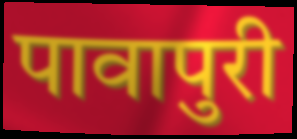
पावापुरी